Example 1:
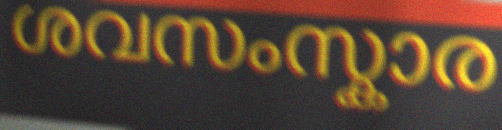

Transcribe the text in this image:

ശവസംസ്കാര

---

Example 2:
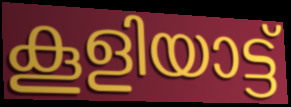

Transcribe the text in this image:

കൂളിയാട്ട്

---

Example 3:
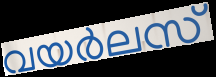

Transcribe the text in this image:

വയർലസ്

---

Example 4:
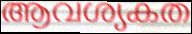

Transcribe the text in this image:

ആവശ്യകത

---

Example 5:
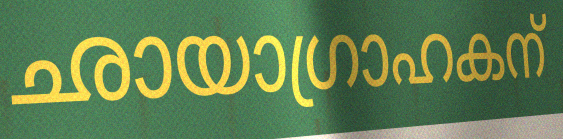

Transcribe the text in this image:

ഛായാഗ്രാഹകന്